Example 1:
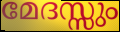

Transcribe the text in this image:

മേദസ്സും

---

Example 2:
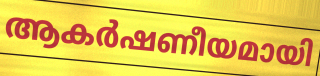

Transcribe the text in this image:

ആകർഷണീയമായി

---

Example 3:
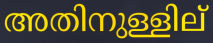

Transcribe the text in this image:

അതിനുള്ളില്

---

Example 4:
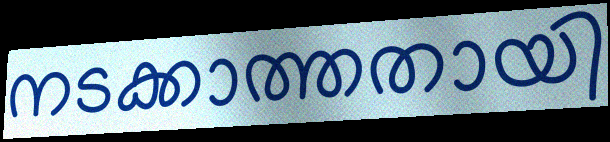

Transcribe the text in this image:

നടക്കാത്തതായി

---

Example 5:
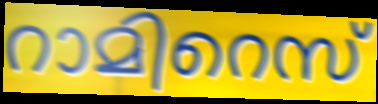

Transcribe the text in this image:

റാമിറെസ്